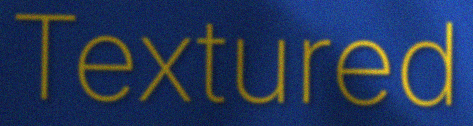
Textured